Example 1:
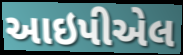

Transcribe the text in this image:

આઇપીએલ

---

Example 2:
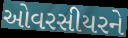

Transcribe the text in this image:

ઓવરસીયરને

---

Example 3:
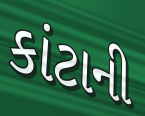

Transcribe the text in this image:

કાંટાની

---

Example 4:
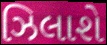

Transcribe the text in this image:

ઝિલાશે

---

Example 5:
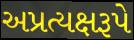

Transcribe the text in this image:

અપ્રત્યક્ષરૂપે